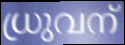
ധ്രുവന്